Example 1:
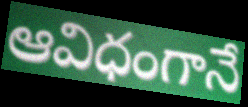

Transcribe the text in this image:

ఆవిధంగానే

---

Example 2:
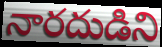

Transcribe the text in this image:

నారదుడిని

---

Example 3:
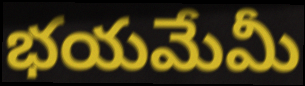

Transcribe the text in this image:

భయమేమీ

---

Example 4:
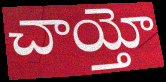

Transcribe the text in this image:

చాయ్తో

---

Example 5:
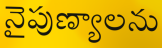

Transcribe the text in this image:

నైపుణ్యాలను